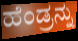
ಹೆಂಡ್ರನ್ನು